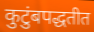
कुटुंबपद्धतीत